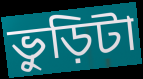
ভুড়িটা